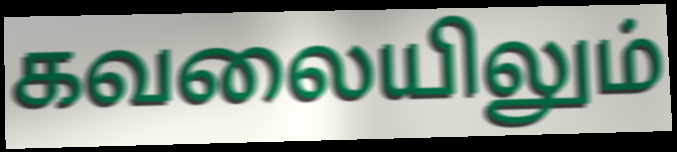
கவலையிலும்